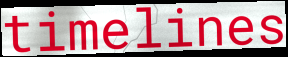
timelines